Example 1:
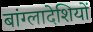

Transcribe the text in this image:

बांग्लादेशियों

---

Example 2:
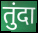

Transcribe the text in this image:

तुंदा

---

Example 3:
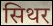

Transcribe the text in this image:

सिथर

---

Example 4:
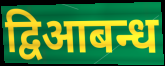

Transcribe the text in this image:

द्विआबन्ध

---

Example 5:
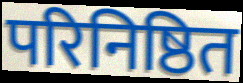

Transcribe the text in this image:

परिनिष्ठित